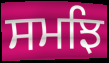
ਸਮਝਿ